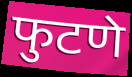
फुटणे